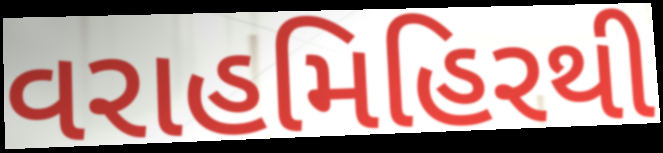
વરાહમિહિરથી